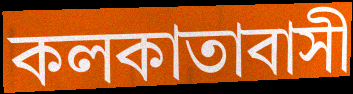
কলকাতাবাসী